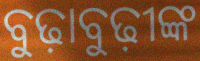
ବୁଢ଼ାବୁଢ଼ୀଙ୍କ